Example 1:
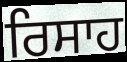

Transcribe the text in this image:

ਰਿਸਾਹ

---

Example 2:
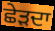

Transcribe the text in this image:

ਛੇੜਦਾ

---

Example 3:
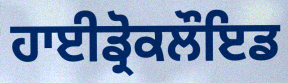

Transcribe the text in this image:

ਹਾਈਡ੍ਰੋਕਲੌਇਡ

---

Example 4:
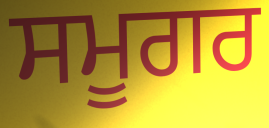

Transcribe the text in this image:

ਸਮੂਗਰ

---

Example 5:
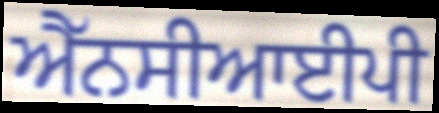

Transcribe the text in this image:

ਐੱਨਸੀਆਈਪੀ